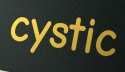
cystic